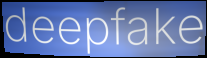
deepfake